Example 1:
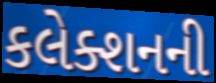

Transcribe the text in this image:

કલેક્શનની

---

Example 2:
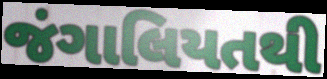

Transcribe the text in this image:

જંગાલિયતથી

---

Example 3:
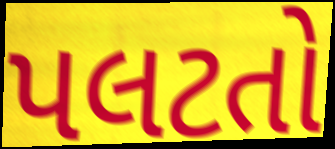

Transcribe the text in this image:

પલટતો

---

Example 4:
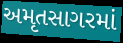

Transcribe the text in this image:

અમૃતસાગરમાં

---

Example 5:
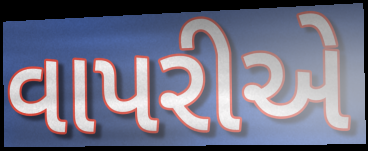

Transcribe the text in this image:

વાપરીએ